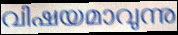
വിഷയമാവുന്നു